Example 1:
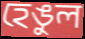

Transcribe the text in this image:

হেঙুল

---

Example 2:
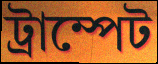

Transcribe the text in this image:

ট্ৰাম্পেট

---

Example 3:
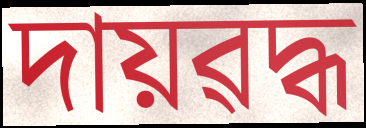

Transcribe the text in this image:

দায়ৱদ্ধ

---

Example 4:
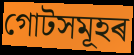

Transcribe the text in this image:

গোটসমূহৰ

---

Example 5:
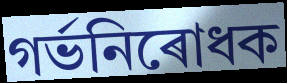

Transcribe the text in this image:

গৰ্ভনিৰোধক